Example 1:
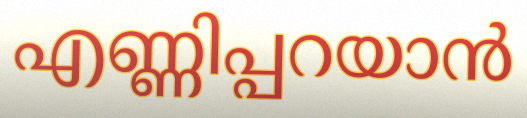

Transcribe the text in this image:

എണ്ണിപ്പറയാൻ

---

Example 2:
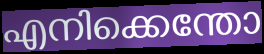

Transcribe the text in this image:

എനിക്കെന്തോ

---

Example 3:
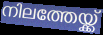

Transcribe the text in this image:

നിലത്തേയ്ക്ക്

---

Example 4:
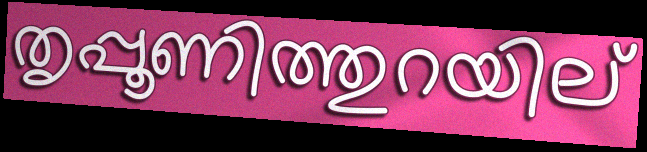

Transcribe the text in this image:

തൃപ്പൂണിത്തുറയില്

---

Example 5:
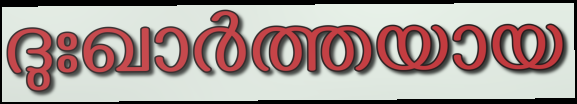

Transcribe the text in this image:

ദുഃഖാർത്തയായ